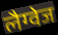
लैग्वेज